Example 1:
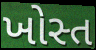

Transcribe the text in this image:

ખોસ્ત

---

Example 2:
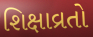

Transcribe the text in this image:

શિક્ષાવ્રતો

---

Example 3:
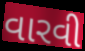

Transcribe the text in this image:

વારવી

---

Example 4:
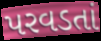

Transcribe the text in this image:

પરવડતાં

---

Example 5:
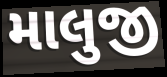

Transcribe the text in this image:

માલુજી